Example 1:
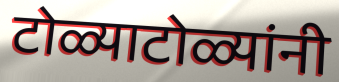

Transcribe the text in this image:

टोळ्याटोळ्यांनी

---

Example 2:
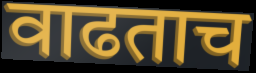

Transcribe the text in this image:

वाढताच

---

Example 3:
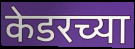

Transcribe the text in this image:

केडरच्या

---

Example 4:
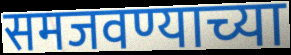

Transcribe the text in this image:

समजवण्याच्या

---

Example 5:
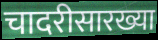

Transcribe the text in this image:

चादरीसारख्या